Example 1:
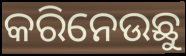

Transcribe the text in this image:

କରିନେଉଛୁ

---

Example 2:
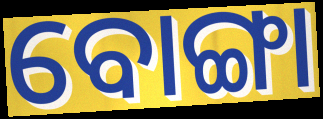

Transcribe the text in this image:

ବୋଙ୍ଗା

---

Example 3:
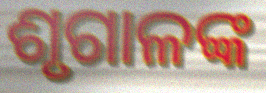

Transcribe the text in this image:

ଶୃଗାଳଙ୍କ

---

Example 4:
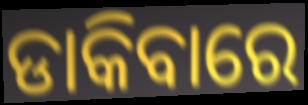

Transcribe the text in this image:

ଡାକିବାରେ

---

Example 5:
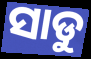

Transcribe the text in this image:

ସାଡୁ